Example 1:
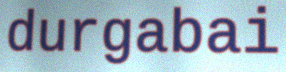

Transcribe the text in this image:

durgabai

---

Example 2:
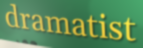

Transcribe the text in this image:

dramatist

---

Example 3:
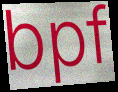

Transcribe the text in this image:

bpf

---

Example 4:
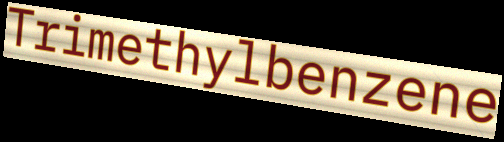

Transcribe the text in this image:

Trimethylbenzene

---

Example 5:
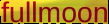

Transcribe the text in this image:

fullmoon